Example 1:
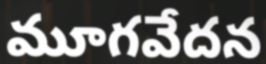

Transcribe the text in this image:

మూగవేదన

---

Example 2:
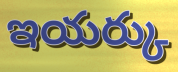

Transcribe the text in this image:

ఇయర్కు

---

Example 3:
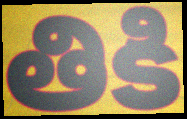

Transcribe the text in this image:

తికి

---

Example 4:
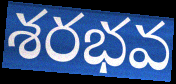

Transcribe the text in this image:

శరభవ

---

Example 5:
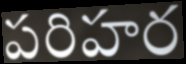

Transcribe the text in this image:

పరిహర